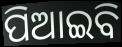
ପିଆଇବି